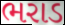
ભરાડ